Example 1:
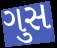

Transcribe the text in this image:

ગુસ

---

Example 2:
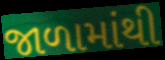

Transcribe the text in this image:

જાળામાંથી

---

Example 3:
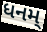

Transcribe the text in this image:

ધનમ્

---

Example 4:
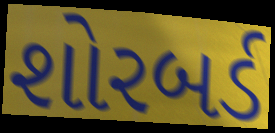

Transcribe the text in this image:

શોરબર્ડ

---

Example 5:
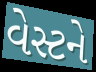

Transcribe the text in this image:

વેસ્ટને